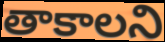
తాకాలని